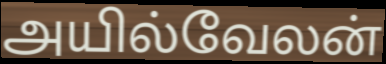
அயில்வேலன்